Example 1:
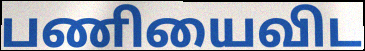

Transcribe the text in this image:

பணியைவிட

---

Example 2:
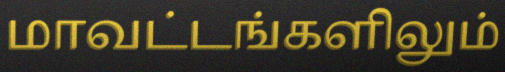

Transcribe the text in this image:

மாவட்டங்களிலும்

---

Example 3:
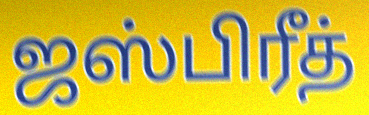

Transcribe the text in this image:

ஜஸ்பிரீத்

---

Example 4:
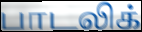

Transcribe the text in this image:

பாடலிக்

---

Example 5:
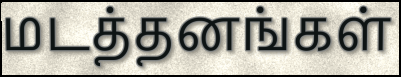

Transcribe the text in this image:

மடத்தனங்கள்